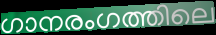
ഗാനരംഗത്തിലെ